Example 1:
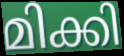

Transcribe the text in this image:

മിക്കി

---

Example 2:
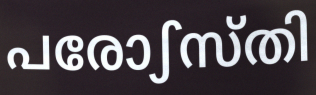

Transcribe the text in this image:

പരോഽസ്തി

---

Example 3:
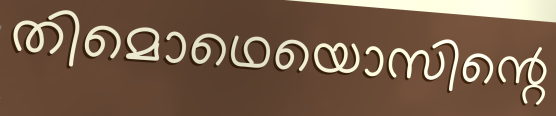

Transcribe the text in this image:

തിമൊഥെയൊസിന്റെ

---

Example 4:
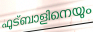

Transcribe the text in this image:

ഫുട്ബാളിനെയും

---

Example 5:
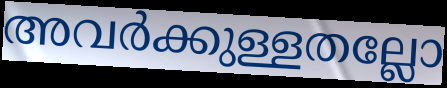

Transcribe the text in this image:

അവർക്കുള്ളതല്ലോ